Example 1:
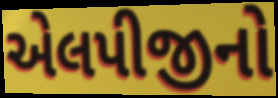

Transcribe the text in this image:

એલપીજીનો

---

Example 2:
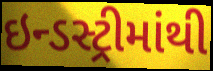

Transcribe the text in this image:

ઇન્ડસ્ટ્રીમાંથી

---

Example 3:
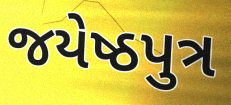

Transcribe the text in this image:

જયેષ્ઠપુત્ર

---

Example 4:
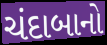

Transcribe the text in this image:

ચંદાબાનો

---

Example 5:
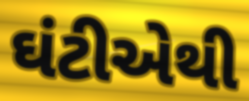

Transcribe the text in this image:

ઘંટીએથી